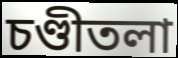
চণ্ডীতলা